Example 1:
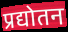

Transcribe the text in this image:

प्रद्योतन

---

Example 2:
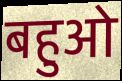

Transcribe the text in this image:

बहुओ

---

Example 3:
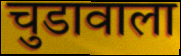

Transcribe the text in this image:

चुडावाला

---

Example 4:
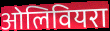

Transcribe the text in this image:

ओलिवियरा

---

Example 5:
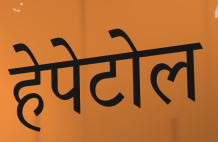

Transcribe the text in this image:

हेपेटोल